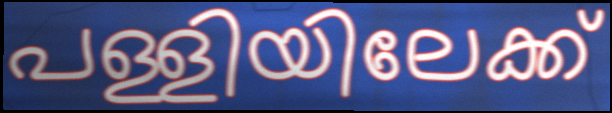
പള്ളിയിലേക്ക്